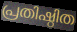
പ്രതിഷ്ഠിത